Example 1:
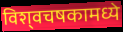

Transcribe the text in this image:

विश्वचषकामध्ये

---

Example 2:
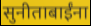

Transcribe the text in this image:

सुनीताबाईंना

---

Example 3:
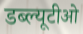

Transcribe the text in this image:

डब्ल्यूटीओ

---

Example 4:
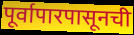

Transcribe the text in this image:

पूर्वापारपासूनची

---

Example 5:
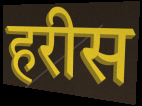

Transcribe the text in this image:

हरीस